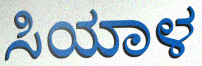
ಸಿಯಾಳ